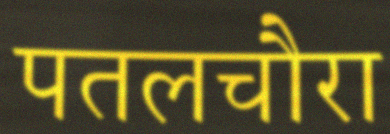
पतलचौरा